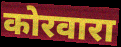
कोरवारा